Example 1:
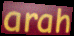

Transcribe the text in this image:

arah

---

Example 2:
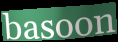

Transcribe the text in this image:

basoon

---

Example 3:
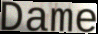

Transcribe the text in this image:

Dame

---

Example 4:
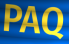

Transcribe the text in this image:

PAQ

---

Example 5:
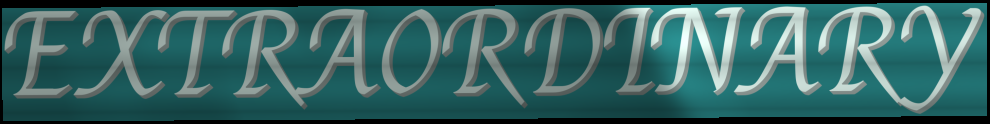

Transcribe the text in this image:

EXTRAORDINARY